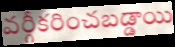
వర్గీకరించబడ్డాయి